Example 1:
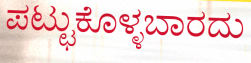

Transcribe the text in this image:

ಪಟ್ಟುಕೊಳ್ಳಬಾರದು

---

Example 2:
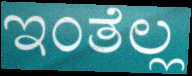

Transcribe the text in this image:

ಇಂತೆಲ್ಲ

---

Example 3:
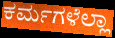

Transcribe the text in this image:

ಕರ್ಮಗಳೆಲ್ಲಾ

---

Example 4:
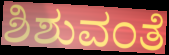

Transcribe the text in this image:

ಶಿಶುವಂತೆ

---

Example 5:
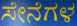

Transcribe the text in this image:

ಸೇನೆಗಳ